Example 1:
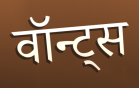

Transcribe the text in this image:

वॉन्ट्स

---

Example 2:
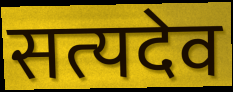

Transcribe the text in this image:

सत्‍यदेव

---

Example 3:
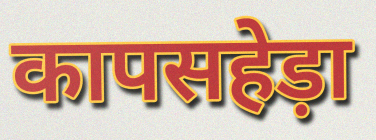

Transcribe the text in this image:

कापसहेड़ा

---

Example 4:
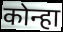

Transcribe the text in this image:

कोन्हा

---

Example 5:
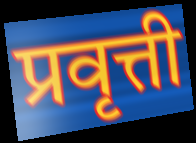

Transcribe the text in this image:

प्रवृत्ती